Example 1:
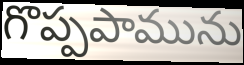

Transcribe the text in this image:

గొప్పపామును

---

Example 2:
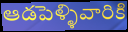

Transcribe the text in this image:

ఆడపెళ్ళివారికి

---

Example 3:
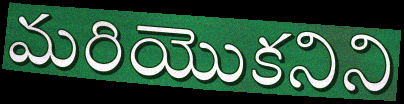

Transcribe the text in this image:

మరియొకనిని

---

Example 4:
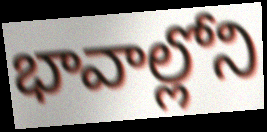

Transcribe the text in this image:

భావాల్లోని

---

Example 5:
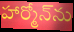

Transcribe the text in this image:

హార్మోన్‌ను